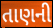
તાણની